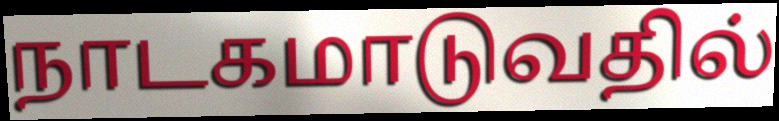
நாடகமாடுவதில்